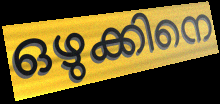
ഒഴുക്കിനെ